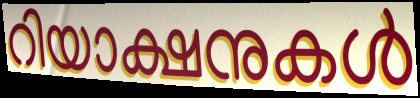
റിയാക്ഷനുകൾ